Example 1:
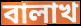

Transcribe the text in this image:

বালাখ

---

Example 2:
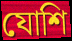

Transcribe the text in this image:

যোশি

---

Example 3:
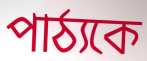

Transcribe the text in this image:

পাঠ্যকে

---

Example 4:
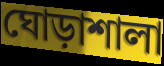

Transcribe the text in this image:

ঘোড়াশালা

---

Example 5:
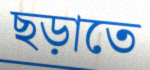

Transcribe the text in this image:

ছড়াতে